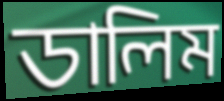
ডালিম